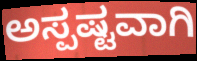
ಅಸ್ಪಷ್ಟವಾಗಿ